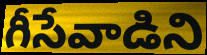
గీసేవాడిని